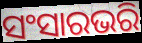
ସଂସାରଭରି